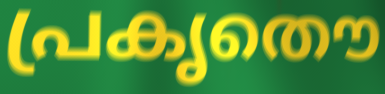
പ്രകൃതൌ